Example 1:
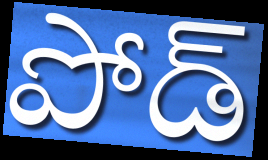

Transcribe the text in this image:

పోడ్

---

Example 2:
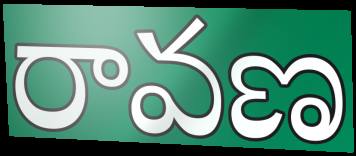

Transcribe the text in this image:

రావణ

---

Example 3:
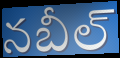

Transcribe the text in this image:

నబీల్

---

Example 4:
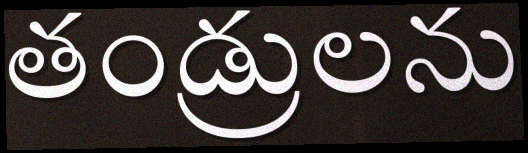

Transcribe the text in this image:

తండ్రులను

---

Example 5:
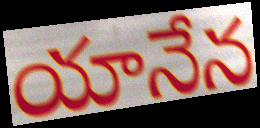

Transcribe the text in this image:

యానేన